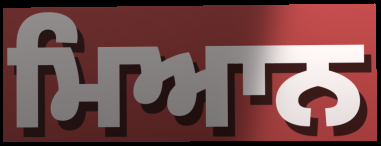
ਮਿਆਨ